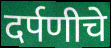
दर्पणीचे